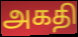
அகதி